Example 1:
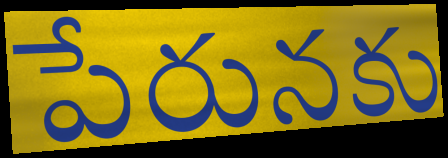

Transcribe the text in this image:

పేరునకు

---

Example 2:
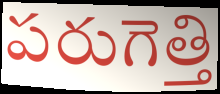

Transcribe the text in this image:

పరుగెత్తి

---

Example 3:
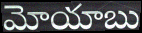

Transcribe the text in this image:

మోయాబు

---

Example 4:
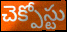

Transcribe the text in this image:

చెక్పోస్టు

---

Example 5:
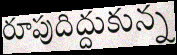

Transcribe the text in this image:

రూపుదిద్దుకున్న